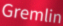
Gremlin